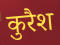
कुरैश